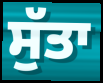
ਸੁੱਤਾ